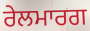
ਰੇਲਮਾਰਗ